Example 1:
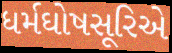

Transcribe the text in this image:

ધર્મઘોષસૂરિએ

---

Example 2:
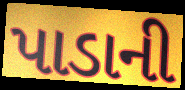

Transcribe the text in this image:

પાડાની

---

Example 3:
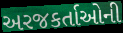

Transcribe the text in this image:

અરજકર્તાઓની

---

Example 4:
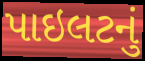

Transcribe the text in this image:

પાઇલટનું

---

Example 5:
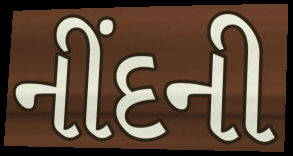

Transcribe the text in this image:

નીંદની